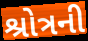
શ્રોત્રની